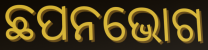
ଛପନଭୋଗ